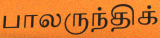
பாலருந்திக்